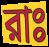
রাঃ